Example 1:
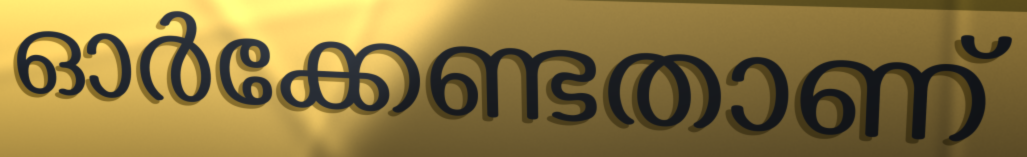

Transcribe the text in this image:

ഓർക്കേണ്ടതാണ്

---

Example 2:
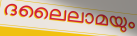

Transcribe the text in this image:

ദലൈലാമയും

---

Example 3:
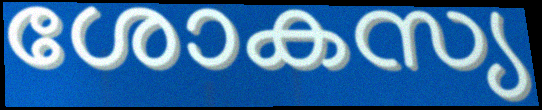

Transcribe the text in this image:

ശോകസ്യ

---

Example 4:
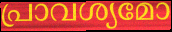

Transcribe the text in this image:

പ്രാവശ്യമോ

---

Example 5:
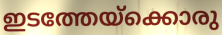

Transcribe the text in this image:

ഇടത്തേയ്ക്കൊരു